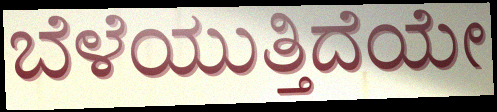
ಬೆಳೆಯುತ್ತಿದೆಯೇ